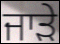
ਜਾੜੇ